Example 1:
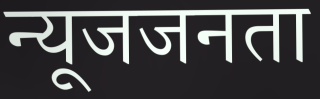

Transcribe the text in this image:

न्यूजजनता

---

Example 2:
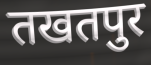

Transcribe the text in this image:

तखतपुर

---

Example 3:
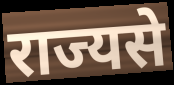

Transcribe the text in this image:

राज्यसे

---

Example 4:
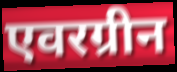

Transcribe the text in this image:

एवरग्रीन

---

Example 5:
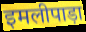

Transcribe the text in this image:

इमलीपाड़ा